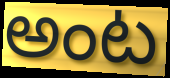
అంట